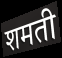
शमती